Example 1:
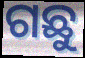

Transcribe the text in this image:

ଗଛୁ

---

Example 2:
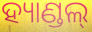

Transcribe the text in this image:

ହ୍ୟାଣ୍ଡଲ୍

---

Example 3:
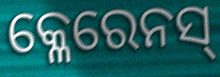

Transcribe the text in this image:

କ୍ଳେରେନସ୍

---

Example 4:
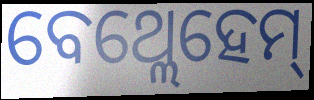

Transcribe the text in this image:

ବେଥ୍ଲେହେମ୍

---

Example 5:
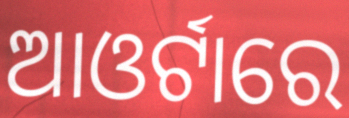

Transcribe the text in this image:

ଆଓର୍ଟାରେ